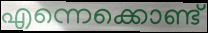
എന്നെക്കൊണ്ട്